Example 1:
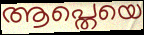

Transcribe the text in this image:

ആപ്തെയെ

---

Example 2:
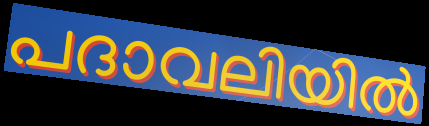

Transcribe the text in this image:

പദാവലിയിൽ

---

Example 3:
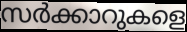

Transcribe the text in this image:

സർക്കാറുകളെ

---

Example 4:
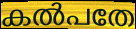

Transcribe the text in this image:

കൽപതേ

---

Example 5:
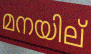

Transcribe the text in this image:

മനയില്